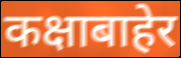
कक्षाबाहेर